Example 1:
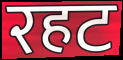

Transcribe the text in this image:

रहट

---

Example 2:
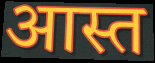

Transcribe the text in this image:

आस्त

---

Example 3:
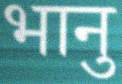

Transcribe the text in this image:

भानु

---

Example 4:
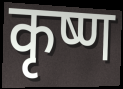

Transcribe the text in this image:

कृष्ण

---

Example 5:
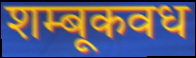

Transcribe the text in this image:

शम्बूकवध